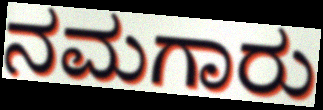
ನಮಗಾರು